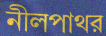
নীলপাথর